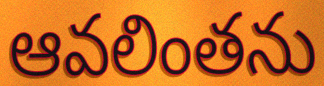
ఆవలింతను